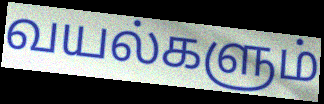
வயல்களும்